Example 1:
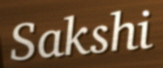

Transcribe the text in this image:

Sakshi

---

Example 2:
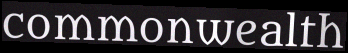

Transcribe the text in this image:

commonwealth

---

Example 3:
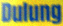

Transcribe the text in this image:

Dulung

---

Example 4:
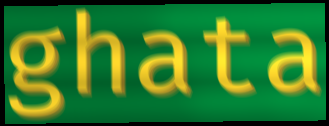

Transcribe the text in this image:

ghata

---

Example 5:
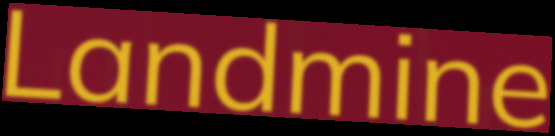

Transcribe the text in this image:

Landmine